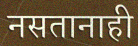
नसतानाही